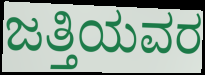
ಜತ್ತಿಯವರ